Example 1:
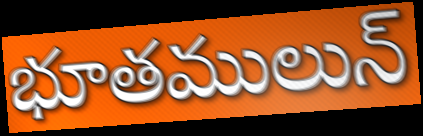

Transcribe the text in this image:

భూతములున్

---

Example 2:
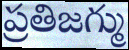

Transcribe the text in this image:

ప్రతిజగ్ము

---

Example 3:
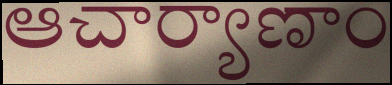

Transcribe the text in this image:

ఆచార్యాణాం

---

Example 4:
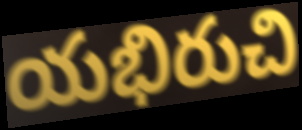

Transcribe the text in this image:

యభిరుచి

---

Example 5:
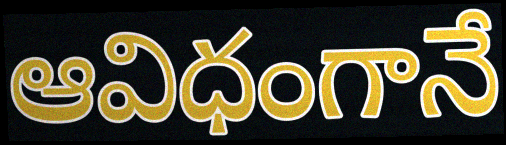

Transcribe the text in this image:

ఆవిధంగానే